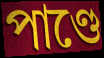
পাণ্ডে